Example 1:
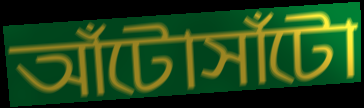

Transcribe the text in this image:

আঁটোসাঁটো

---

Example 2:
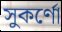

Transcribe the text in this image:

সুকর্ণো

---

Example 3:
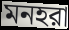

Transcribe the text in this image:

মনহরা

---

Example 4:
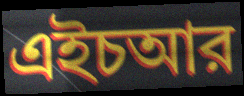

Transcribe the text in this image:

এইচআর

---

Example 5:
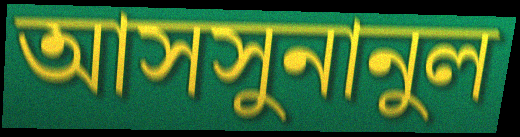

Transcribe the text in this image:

আসসুনানুল